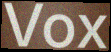
Vox